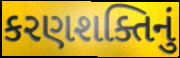
કરણશક્તિનું